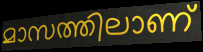
മാസത്തിലാണ്